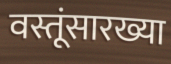
वस्तूंसारख्या